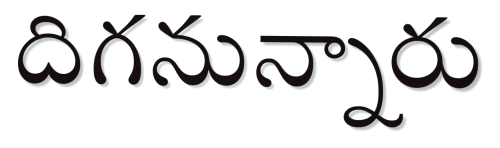
దిగనున్నారు